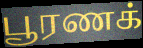
பூரணக்